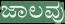
ಜಾಲವು